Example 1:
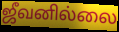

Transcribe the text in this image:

ஜீவனில்லை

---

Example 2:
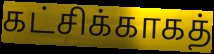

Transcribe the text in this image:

கட்சிக்காகத்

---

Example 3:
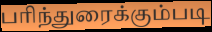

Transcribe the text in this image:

பரிந்துரைக்கும்படி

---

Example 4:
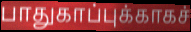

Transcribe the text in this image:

பாதுகாப்புக்காகச்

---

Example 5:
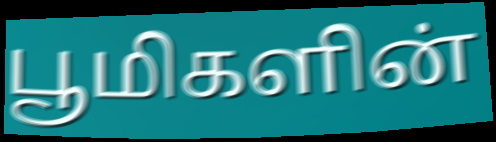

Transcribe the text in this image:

பூமிகளின்